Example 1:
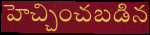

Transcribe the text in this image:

హెచ్చించబడిన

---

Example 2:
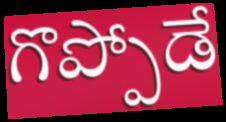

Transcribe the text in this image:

గొప్పోడే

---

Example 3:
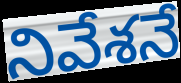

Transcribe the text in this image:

నివేశనే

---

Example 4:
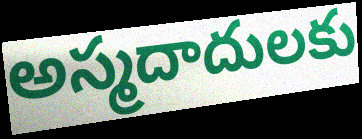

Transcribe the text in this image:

అస్మదాదులకు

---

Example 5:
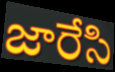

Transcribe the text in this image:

జారేసి